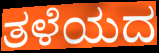
ತಳೆಯದ